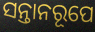
ସନ୍ତାନରୂପେ